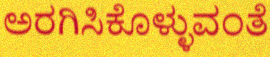
ಅರಗಿಸಿಕೊಳ್ಳುವಂತೆ